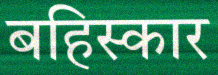
बहिस्कार